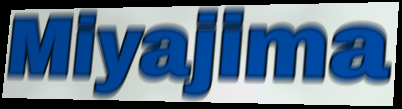
Miyajima